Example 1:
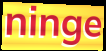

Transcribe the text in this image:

ninge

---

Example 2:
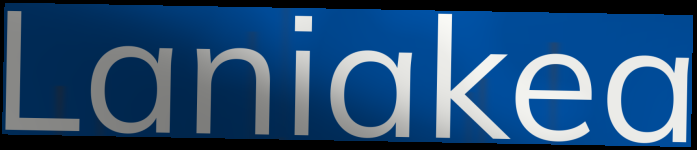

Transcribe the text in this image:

Laniakea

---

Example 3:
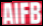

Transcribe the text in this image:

AIFB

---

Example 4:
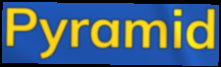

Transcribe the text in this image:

Pyramid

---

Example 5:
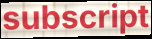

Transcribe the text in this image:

subscript